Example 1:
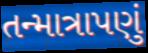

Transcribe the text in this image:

તન્માત્રાપણું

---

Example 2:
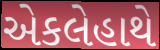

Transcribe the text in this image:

એકલેહાથે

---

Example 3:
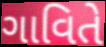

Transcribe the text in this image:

ગાવિતે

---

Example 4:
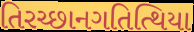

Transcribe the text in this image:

તિરચ્છાનગતિત્થિયા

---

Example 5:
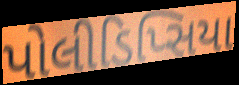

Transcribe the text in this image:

પોલીડિપ્સિયા